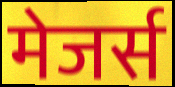
मेजर्स